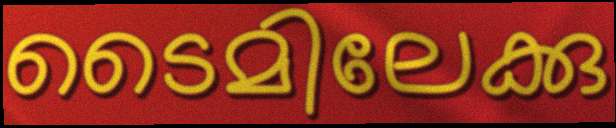
ടൈമിലേക്കു